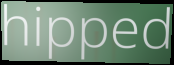
hipped